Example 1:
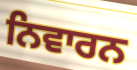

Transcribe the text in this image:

ਨਿਵਾਰਨ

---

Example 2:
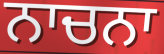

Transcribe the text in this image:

ਨਾਚਨਾ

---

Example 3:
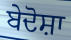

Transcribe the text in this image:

ਬੇਦੋਸ਼ਾ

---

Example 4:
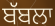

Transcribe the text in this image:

ਬੱਬਲਾ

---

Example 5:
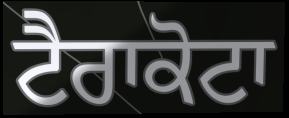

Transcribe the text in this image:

ਟੈਰਾਕੋਟਾ